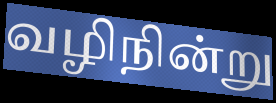
வழிநின்று